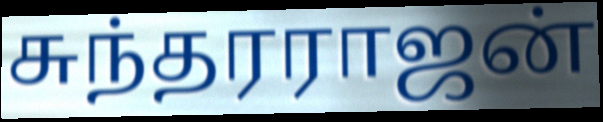
சுந்தரராஜன்